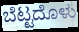
ಬೆಟ್ಟದೊಳು